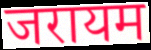
जरायम